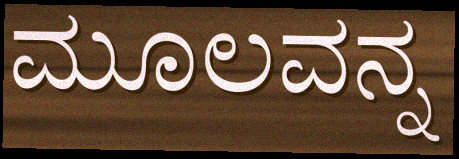
ಮೂಲವನ್ನ